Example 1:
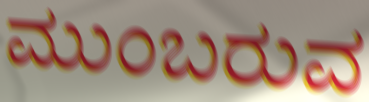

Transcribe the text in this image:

ಮುಂಬರುವ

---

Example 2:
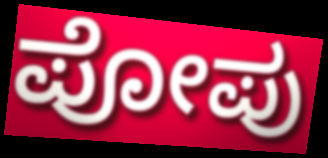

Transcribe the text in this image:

ಪೋಪು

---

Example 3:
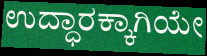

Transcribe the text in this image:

ಉದ್ಧಾರಕ್ಕಾಗಿಯೇ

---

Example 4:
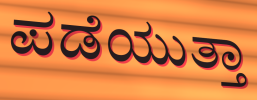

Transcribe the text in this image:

ಪಡೆಯುತ್ತಾ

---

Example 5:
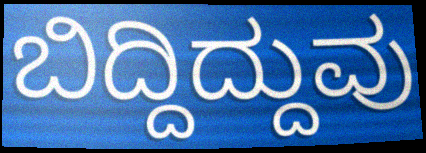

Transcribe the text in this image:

ಬಿದ್ದಿದ್ದುವು